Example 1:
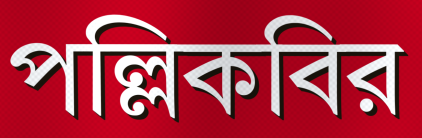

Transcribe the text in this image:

পল্লিকবির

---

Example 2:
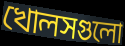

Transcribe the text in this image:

খোলসগুলো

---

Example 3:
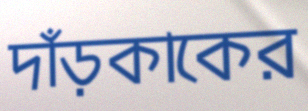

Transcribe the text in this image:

দাঁড়কাকের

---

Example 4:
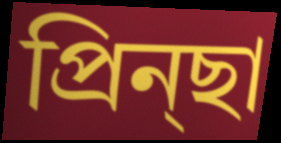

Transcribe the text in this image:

প্রিন্ছা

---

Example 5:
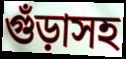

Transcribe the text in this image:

গুঁড়াসহ